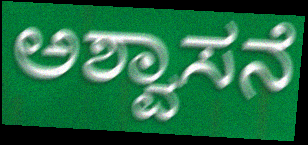
ಅಶ್ವಾಸನೆ